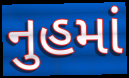
નુહમાં